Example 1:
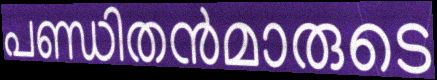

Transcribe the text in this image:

പണ്ഡിതൻമാരുടെ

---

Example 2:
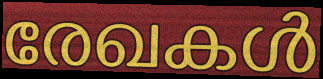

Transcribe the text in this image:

രേഖകൾ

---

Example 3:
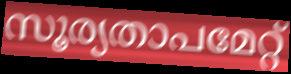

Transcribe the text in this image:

സൂര്യതാപമേറ്റ്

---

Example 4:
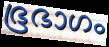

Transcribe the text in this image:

ഭൂഭാഗം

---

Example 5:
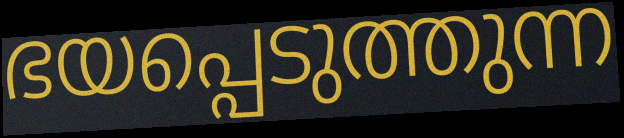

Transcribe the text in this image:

ഭയപ്പെടുത്തുന്ന